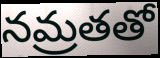
నమ్రతతో